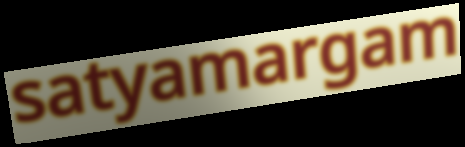
satyamargam